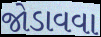
જોડાવવા